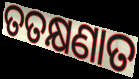
ତତକ୍ଷଣାତ